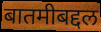
बातमीबद्दल